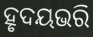
ହୃଦୟଭରି